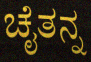
ಚೈತನ್ನ